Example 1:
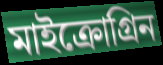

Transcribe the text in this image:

মাইক্রোগ্রিন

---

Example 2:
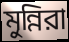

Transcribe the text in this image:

মুন্নিরা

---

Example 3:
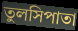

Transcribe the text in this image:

তুলসিপাতা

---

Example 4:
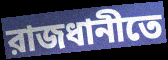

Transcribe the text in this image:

রাজধানীতে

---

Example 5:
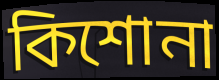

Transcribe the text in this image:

কিশোনা